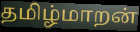
தமிழ்மாறன்